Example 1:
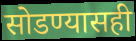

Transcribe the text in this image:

सोडण्यासही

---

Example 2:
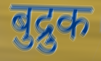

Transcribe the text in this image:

बुद्रुक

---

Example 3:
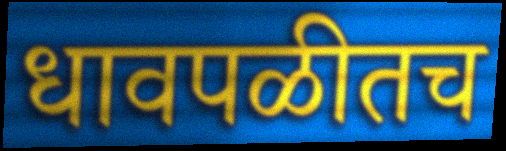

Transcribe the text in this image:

धावपळीतच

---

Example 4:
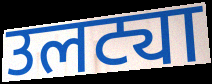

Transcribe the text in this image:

उलट्या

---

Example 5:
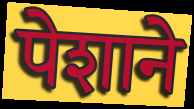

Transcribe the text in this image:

पेशाने